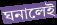
ঘনালেই